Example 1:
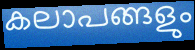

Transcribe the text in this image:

കലാപങ്ങളും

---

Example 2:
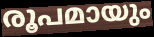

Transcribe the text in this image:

രൂപമായും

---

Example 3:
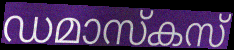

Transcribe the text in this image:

ഡമാസ്കസ്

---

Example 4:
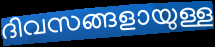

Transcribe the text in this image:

ദിവസങ്ങളായുള്ള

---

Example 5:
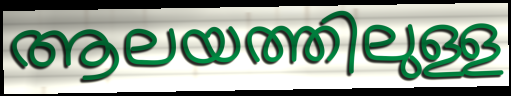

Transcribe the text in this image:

ആലയത്തിലുള്ള